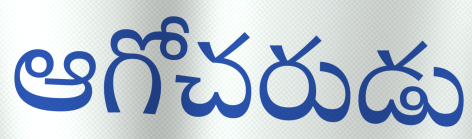
ఆగోచరుడు